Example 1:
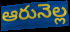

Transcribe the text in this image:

ఆరునెల్ల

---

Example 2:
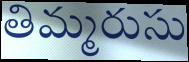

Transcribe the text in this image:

తిమ్మరుసు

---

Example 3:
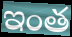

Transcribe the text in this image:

ఇంత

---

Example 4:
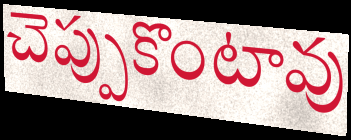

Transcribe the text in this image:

చెప్పుకొంటావు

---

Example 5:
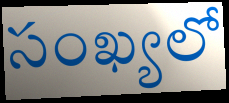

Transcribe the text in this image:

సంఖ్యలో